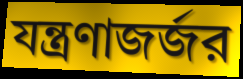
যন্ত্রণাজর্জর